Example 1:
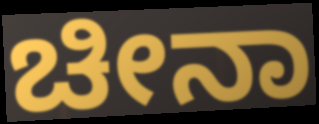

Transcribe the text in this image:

ಚೀನಾ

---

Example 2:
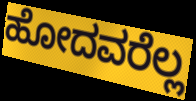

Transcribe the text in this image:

ಹೋದವರೆಲ್ಲ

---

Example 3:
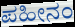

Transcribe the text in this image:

ಪಹೀನಂ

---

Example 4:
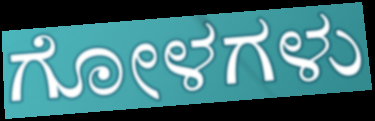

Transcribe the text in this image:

ಗೋಳಗಳು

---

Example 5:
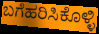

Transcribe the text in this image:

ಬಗೆಹರಿಸಿಕೊಳ್ಳಿ